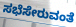
ಸಭೆಸೇರುವಂತೆ